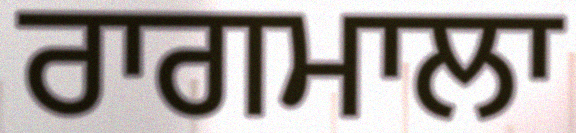
ਰਾਗਮਾਲਾ